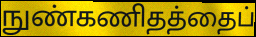
நுண்கணிதத்தைப்